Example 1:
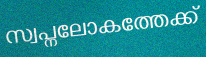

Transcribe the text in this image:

സ്വപ്നലോകത്തേക്ക്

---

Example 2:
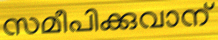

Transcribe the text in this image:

സമീപിക്കുവാന്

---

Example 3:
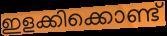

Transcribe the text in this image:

ഇളക്കിക്കൊണ്ട്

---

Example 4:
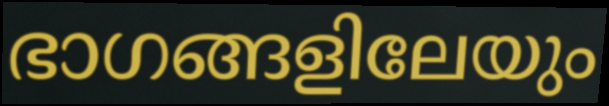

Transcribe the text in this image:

ഭാഗങ്ങളിലേയും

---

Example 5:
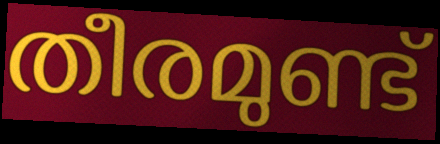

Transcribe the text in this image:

തീരമുണ്ട്